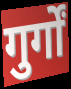
गुर्गों